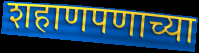
शहाणपणाच्या